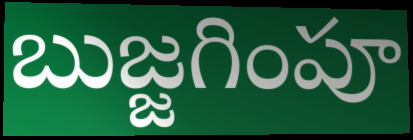
బుజ్జగింపూ